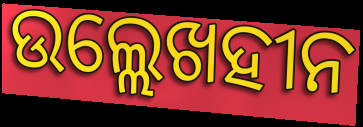
ଉଲ୍ଲେଖହୀନ